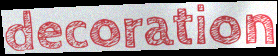
decoration